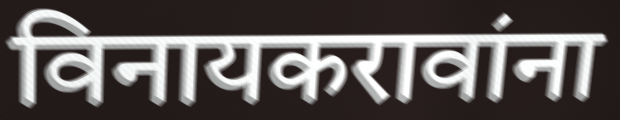
विनायकरावांना